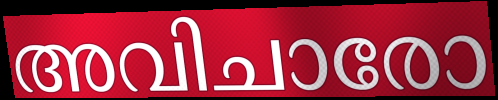
അവിചാരോ